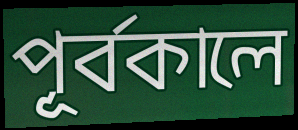
পূর্বকালে